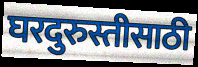
घरदुरुस्तीसाठी